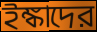
ইঙ্কাদের